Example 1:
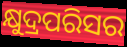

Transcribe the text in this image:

କ୍ଷୁଦ୍ରପରିସର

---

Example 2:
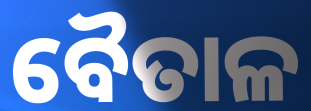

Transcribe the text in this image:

ବୈତାଳ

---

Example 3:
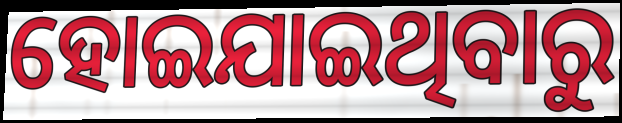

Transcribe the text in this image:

ହୋଇଯାଇଥିବାରୁ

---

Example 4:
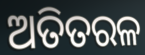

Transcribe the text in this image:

ଅତିତରଳ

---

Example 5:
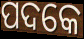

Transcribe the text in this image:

ପଦକେ